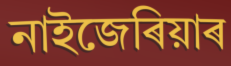
নাইজেৰিয়াৰ